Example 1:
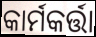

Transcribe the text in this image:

କାର୍ମକର୍ତ୍ତା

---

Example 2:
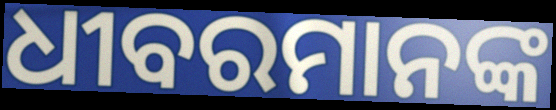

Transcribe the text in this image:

ଧୀବରମାନଙ୍କ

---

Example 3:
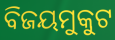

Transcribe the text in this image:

ବିଜୟମୁକୁଟ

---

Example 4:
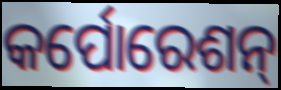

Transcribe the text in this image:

କର୍ପୋରେଶନ୍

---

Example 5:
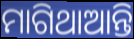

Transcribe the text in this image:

ମାଗିଥାଆନ୍ତି